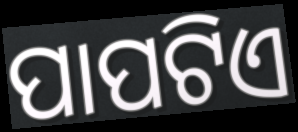
ପାପଟିଏ